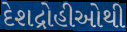
દેશદ્રોહીઓથી